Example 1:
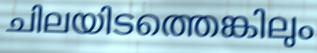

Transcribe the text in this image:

ചിലയിടത്തെങ്കിലും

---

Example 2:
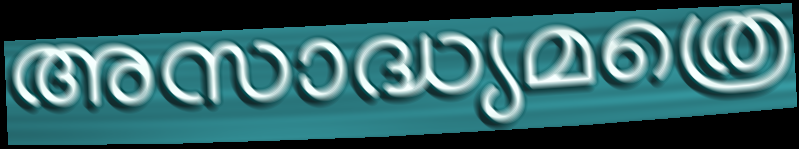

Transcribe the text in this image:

അസാദ്ധ്യമത്രെ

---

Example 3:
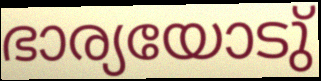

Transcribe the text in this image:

ഭാര്യയോടു്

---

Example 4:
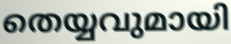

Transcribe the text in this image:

തെയ്യവുമായി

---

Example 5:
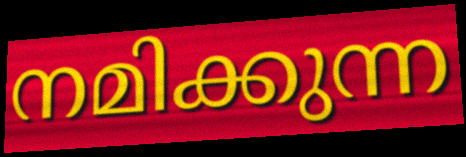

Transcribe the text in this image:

നമിക്കുന്ന